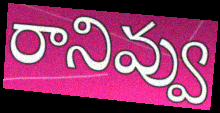
రానివ్వు